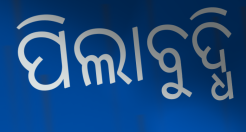
ପିଲାବୁଦ୍ଧି